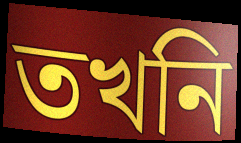
তখনি